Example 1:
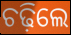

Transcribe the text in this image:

ଚଢ଼ିଲେ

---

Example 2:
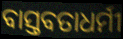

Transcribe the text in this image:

ବାସ୍ତବତାଧର୍ମୀ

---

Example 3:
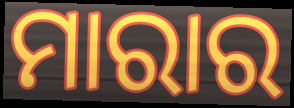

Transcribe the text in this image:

ମାରାର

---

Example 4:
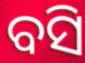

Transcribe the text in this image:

ବସି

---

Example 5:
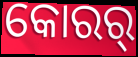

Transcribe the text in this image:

କୋରର୍